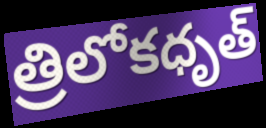
త్రిలోకధృత్